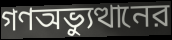
গণঅভ্যুত্থানের